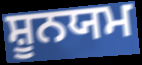
ਸ਼ੂਨਯਮ